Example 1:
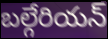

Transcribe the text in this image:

బల్గేరియన్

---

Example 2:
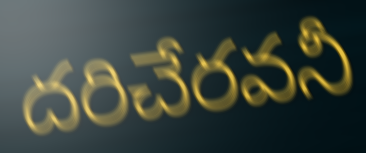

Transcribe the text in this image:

దరిచేరవనీ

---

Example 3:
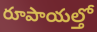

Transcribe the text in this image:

రూపాయల్తో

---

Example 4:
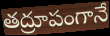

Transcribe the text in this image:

తద్రూపంగానే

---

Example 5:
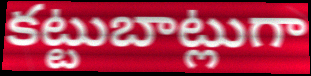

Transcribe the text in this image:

కట్టుబాట్లుగా